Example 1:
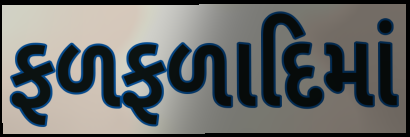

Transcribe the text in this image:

ફળફળાદિમાં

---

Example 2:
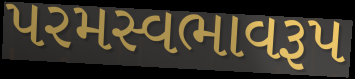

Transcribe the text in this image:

પરમસ્વભાવરૂપ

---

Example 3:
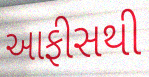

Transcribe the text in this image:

આફીસથી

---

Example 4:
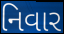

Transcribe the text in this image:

નિવાર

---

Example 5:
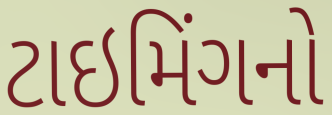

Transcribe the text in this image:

ટાઇમિંગનો